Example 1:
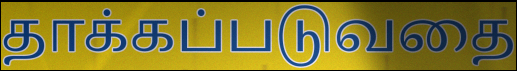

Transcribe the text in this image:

தாக்கப்படுவதை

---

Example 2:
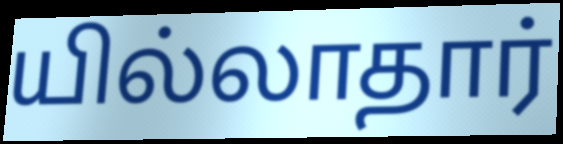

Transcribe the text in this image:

யில்லாதார்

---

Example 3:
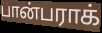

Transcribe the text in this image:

பான்பராக்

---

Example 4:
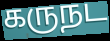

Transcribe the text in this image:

கருநட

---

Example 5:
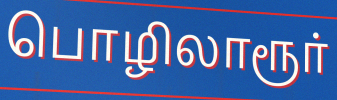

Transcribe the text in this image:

பொழிலாரூர்